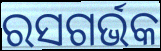
ରସଗର୍ଭକ